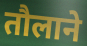
तौलाने